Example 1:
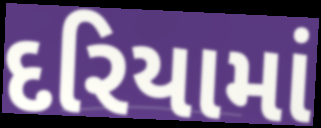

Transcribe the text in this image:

દરિયામાં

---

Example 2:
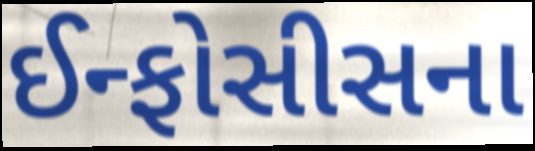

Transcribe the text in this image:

ઈન્ફોસીસના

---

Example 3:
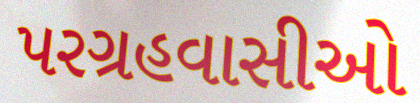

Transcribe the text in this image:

પરગ્રહવાસીઓ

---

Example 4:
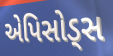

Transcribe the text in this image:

એપિસોડ્સ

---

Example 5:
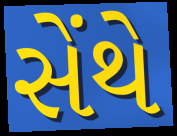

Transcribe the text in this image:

સેંથે